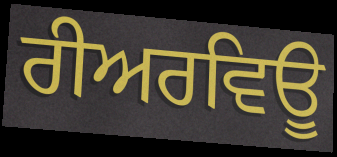
ਰੀਅਰਵਿਊ